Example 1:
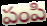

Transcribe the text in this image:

పంపి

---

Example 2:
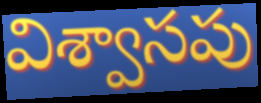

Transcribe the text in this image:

విశ్వాసపు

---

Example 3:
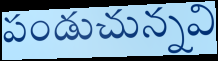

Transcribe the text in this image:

పండుచున్నవి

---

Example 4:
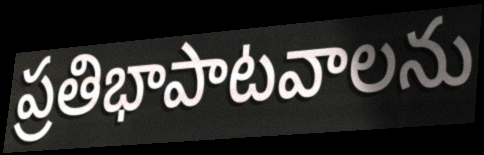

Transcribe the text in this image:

ప్రతిభాపాటవాలను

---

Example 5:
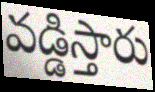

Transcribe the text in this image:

వడ్డిస్తారు